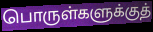
பொருள்களுக்குத்